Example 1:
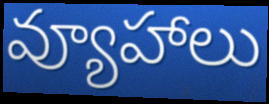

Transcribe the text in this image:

వ్యూహాలు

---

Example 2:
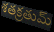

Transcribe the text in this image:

శతక్రతుమ్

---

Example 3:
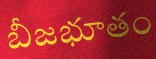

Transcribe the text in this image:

బీజభూతం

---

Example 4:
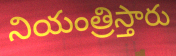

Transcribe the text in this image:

నియంత్రిస్తారు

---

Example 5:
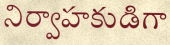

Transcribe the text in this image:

నిర్వాహకుడిగా